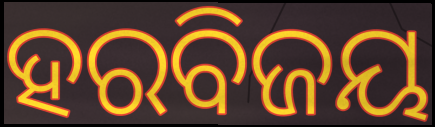
ହରବିଜୟ